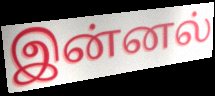
இன்னல்